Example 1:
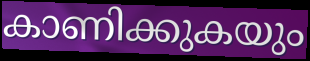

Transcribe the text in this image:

കാണിക്കുകയും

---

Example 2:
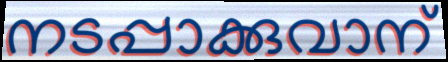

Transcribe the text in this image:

നടപ്പാക്കുവാന്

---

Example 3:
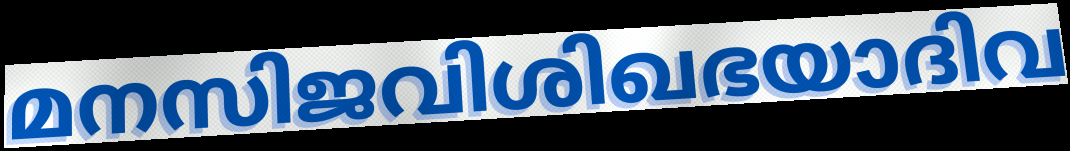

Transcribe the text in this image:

മനസിജവിശിഖഭയാദിവ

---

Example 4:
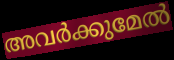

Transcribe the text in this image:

അവർക്കുമേൽ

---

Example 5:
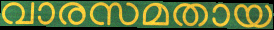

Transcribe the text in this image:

വാരസമതായ